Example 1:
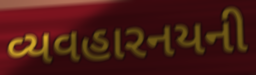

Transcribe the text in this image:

વ્યવહારનયની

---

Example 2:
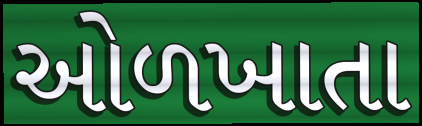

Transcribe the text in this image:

ઓળખાતા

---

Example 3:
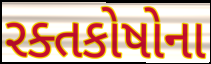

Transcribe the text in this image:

રક્તકોષોના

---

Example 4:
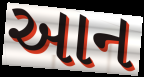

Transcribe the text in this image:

આન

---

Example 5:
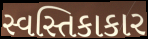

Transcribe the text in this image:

સ્વસ્તિકાકાર